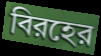
বিরহের